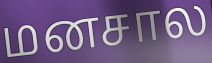
மனசால